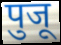
पुजू